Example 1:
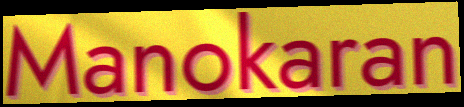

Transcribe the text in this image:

Manokaran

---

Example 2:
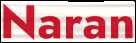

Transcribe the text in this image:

Naran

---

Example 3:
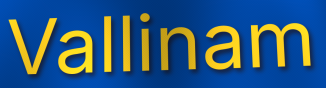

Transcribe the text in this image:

Vallinam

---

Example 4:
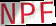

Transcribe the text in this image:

NPF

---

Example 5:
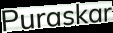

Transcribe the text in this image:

Puraskar